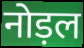
नोड़ल